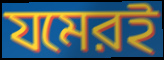
যমেরই